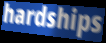
hardships